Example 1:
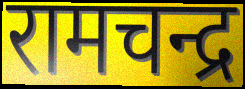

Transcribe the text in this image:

रामचन्द्र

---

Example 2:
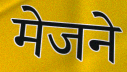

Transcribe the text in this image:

मेजने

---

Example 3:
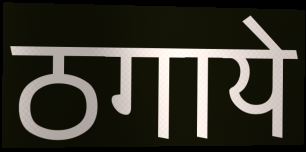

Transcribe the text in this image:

ठगाये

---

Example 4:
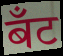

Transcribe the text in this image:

बँट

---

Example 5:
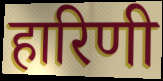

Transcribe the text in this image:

हारिणी